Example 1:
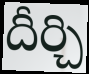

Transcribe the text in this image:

దీర్చి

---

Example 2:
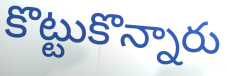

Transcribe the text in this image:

కొట్టుకొన్నారు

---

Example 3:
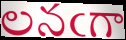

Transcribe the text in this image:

లనఁగా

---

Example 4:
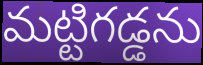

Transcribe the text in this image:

మట్టిగడ్డను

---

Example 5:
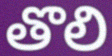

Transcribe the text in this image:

తొలి